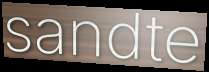
sandte